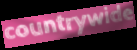
countrywide